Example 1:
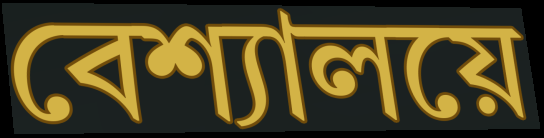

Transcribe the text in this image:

বেশ্যালয়ে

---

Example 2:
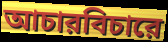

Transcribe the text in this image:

আচারবিচারে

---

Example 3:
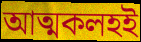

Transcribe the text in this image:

আত্মকলহই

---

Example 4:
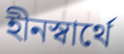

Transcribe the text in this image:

হীনস্বার্থে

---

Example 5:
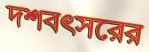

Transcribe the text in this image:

দশবৎসরের